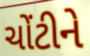
ચોંટીને